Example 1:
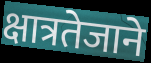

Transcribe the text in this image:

क्षात्रतेजाने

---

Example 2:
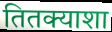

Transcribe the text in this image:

तितक्याशा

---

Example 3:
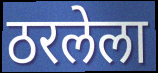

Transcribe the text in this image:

ठरलेला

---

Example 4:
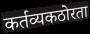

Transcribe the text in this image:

कर्तव्यकठोरता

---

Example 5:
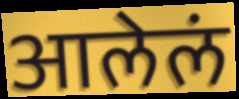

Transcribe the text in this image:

आलेलं